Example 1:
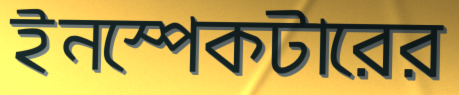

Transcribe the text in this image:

ইনস্পেকটারের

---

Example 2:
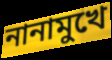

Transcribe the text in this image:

নানামুখে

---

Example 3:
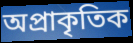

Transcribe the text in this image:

অপ্রাকৃতিক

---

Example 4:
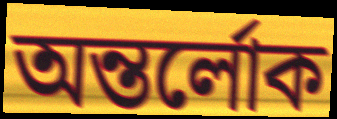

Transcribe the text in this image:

অন্তর্লোক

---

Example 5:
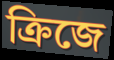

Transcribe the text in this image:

ক্রিজে